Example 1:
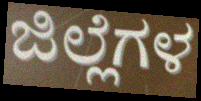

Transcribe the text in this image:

ಜಿಲ್ಲೆಗಳ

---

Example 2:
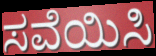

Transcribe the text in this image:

ಸವೆಯಿಸಿ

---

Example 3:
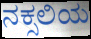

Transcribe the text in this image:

ನಕ್ಸಲಿಯ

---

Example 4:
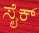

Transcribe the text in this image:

ಸೈಕ್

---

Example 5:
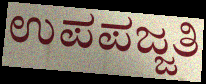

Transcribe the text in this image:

ಉಪಪಜ್ಜತಿ